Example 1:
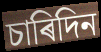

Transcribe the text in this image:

চাৰিদিন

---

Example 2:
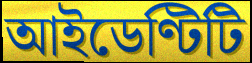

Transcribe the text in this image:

আইডেণ্টিটি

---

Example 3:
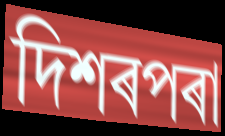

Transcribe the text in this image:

দিশৰপৰা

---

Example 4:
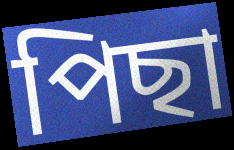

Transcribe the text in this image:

পিছা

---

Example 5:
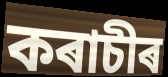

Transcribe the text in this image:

কৰাচীৰ